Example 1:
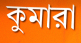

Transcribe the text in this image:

কুমারা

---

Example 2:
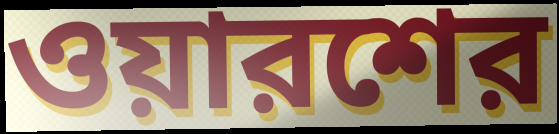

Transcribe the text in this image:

ওয়ারশের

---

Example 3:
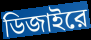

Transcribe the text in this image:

ডিজাইরে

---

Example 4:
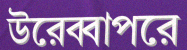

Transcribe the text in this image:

উরেব্বাপরে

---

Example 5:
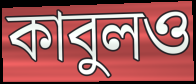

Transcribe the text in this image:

কাবুলও